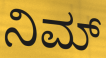
ನಿಮ್